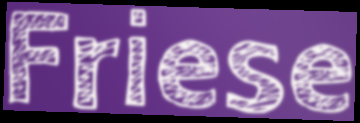
Friese